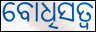
ବୋଧିସତ୍ୱ